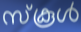
സ്കൂൾ